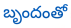
బృందంతో